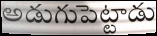
అడుగుపెట్టాడు